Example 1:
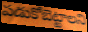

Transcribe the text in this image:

పడుకోబెట్టాలని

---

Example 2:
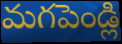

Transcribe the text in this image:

మగపెండ్లి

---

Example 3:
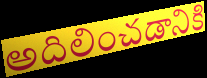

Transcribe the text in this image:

అదిలించడానికి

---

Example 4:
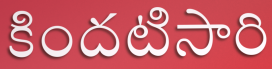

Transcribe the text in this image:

కిందటిసారి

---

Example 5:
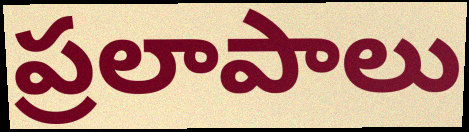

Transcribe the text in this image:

ప్రలాపాలు